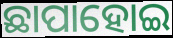
ଛାପାହୋଇ